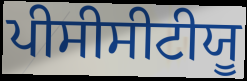
ਪੀਸੀਸੀਟੀਯੂ